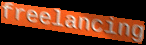
freelancing